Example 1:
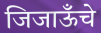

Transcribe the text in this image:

जिजाऊँचे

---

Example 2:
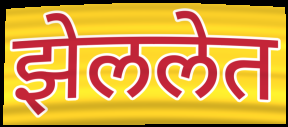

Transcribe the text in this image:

झेललेत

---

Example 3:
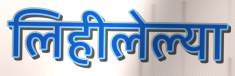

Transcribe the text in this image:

लिहीलेल्या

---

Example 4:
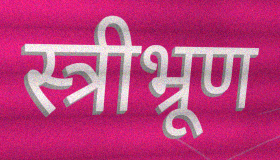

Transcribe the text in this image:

स्त्रीभ्रूण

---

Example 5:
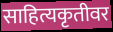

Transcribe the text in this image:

साहित्यकृतीवर